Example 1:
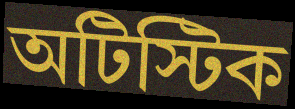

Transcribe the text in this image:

অটিস্টিক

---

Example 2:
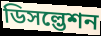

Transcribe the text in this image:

ডিসল্ভেশন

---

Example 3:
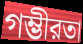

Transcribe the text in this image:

গম্ভীরতা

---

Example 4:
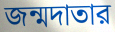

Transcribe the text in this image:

জন্মদাতার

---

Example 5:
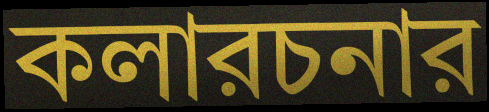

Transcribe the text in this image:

কলারচনার